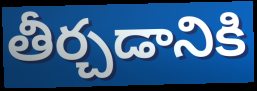
తీర్చడానికి